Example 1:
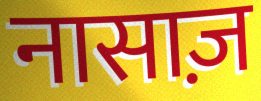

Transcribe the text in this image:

नासाज़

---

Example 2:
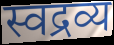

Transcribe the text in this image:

स्वद्रव्य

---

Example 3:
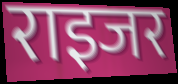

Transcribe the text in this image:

राइजर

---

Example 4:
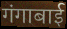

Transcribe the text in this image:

गंगाबाई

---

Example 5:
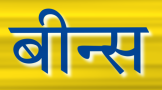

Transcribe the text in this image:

बीन्‍स